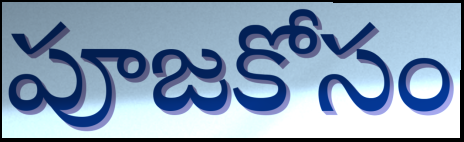
పూజకోసం